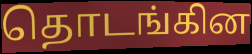
தொடங்கின